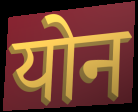
योन